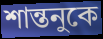
শান্তনুকে